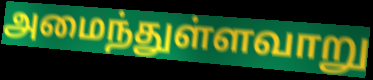
அமைந்துள்ளவாறு